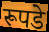
रूपडे